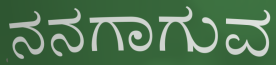
ನನಗಾಗುವ